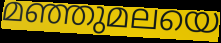
മഞ്ഞുമലയെ